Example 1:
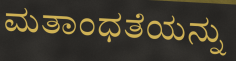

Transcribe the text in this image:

ಮತಾಂಧತೆಯನ್ನು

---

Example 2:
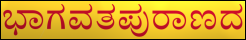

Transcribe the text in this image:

ಭಾಗವತಪುರಾಣದ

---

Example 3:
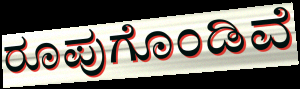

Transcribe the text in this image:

ರೂಪುಗೊಂಡಿವೆ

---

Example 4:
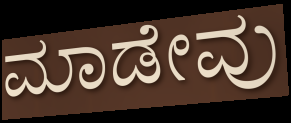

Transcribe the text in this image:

ಮಾಡೇವು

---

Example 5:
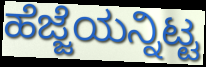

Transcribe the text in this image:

ಹೆಜ್ಜೆಯನ್ನಿಟ್ಟ